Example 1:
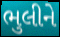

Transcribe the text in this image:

ભુલીને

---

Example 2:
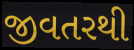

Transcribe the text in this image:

જીવતરથી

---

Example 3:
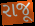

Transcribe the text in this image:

રાજૂ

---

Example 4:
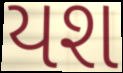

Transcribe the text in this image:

યશ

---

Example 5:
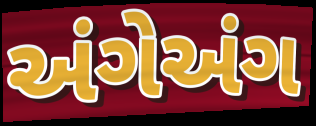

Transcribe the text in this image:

અંગેઅંગ